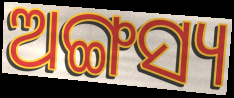
ଅଙ୍ଗସ୍ୟ